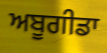
ਅਬੂਗੀਡਾ